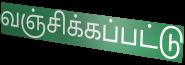
வஞ்சிக்கப்பட்டு